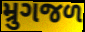
મ્રુગજળ